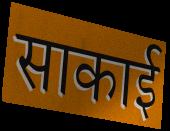
साकाई